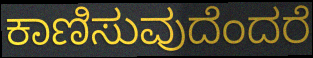
ಕಾಣಿಸುವುದೆಂದರೆ